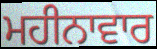
ਮਹੀਨਾਵਾਰ